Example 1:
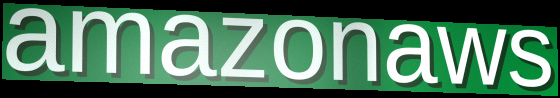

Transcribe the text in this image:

amazonaws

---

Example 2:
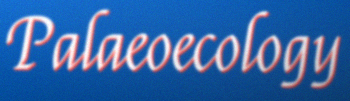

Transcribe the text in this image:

Palaeoecology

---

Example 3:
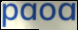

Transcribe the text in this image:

paoa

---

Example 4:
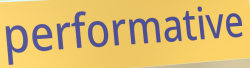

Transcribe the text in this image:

performative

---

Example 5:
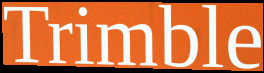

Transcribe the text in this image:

Trimble